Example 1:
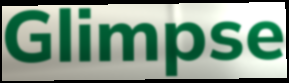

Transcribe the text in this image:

Glimpse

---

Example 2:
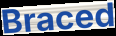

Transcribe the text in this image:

Braced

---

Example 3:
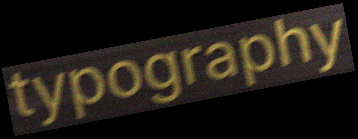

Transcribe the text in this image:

typography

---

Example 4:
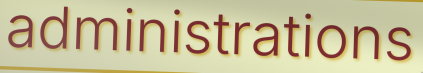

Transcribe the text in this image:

administrations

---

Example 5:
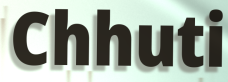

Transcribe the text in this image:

Chhuti